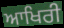
ਆਖਿਰੀ